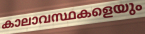
കാലാവസ്ഥകളെയും